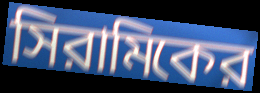
সিরামিকের